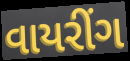
વાયરીંગ